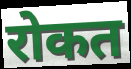
रोकत